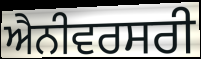
ਐਨੀਵਰਸਰੀ